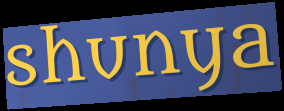
shunya